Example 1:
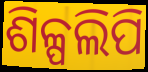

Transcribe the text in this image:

ଶିଳ୍ପଲିପି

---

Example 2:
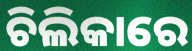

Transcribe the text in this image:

ଚିଲିକାରେ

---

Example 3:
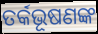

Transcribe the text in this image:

ତର୍କଭୂଷଣଙ୍କ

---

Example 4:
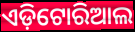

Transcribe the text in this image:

ଏଡ଼ିଟୋରିଆଲ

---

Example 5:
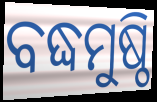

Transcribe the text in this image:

ବଦ୍ଧମୁଷ୍ଠି